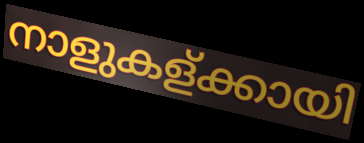
നാളുകള്ക്കായി